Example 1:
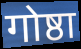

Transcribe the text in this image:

गोष्ठा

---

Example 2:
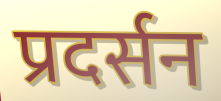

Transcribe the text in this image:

प्रदर्सन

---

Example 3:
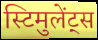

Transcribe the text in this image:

स्टिमुलेंट्स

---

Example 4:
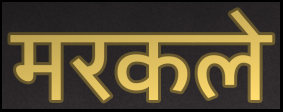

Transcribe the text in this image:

मरकले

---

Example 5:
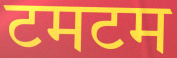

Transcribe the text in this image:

टमटम